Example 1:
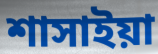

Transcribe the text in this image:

শাসাইয়া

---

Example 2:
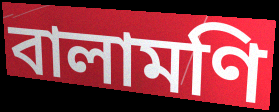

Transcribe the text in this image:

বালামণি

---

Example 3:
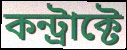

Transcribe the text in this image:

কন্ট্রাক্টে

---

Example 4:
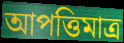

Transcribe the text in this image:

আপত্তিমাত্র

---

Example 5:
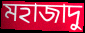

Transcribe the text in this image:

মহাজাদু